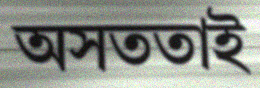
অসততাই